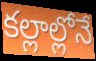
కల్లాల్లోనే